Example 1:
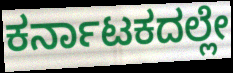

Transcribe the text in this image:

ಕರ್ನಾಟಕದಲ್ಲೇ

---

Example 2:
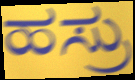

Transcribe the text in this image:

ಹಸ್ರು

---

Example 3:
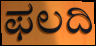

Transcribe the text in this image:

ಫಲದಿ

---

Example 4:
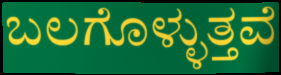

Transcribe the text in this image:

ಬಲಗೊಳ್ಳುತ್ತವೆ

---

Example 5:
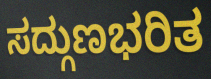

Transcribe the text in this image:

ಸದ್ಗುಣಭರಿತ